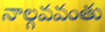
నాల్గవవంతు